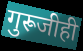
गुरूजीही